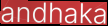
andhaka